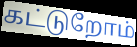
கட்டுறோம்